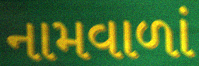
નામવાળાં